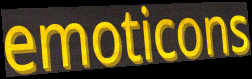
emoticons